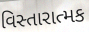
વિસ્તારાત્મક